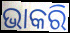
ଭାକରି